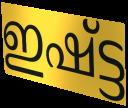
ഇഷ്ട്ട